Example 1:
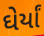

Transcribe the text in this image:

ઘેર્યાં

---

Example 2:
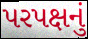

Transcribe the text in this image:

પરપક્ષનું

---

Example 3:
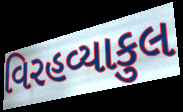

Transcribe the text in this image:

વિરહવ્યાકુલ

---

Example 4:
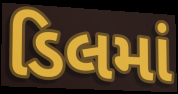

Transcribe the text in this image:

ડિલમાં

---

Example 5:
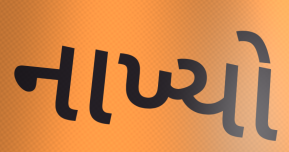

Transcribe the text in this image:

નાખ્યો